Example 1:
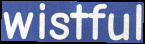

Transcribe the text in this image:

wistful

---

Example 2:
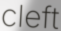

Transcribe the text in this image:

cleft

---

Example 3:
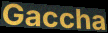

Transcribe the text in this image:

Gaccha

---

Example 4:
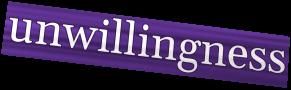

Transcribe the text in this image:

unwillingness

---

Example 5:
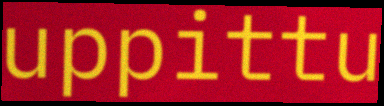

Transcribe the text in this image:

uppittu